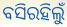
ବସିରହିଲୁଁ